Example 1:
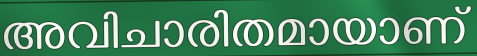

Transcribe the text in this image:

അവിചാരിതമായാണ്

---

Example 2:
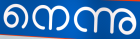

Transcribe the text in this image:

നെന്നു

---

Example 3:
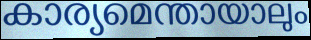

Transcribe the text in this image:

കാര്യമെന്തായാലും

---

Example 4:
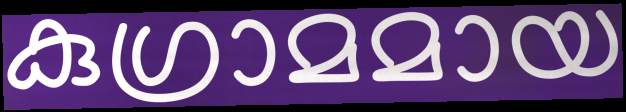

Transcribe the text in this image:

കുഗ്രാമമായ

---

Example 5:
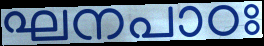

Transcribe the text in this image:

ഘനപാഠഃ